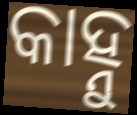
କାହ୍ନୁ